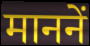
माननें